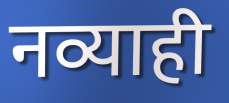
नव्याही